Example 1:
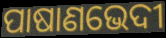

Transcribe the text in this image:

ପାଷାଣଭେଦୀ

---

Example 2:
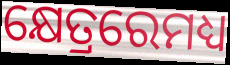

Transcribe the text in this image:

କ୍ଷେତ୍ରରେମଧ୍ୟ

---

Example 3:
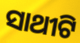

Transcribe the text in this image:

ସାଥୀଟି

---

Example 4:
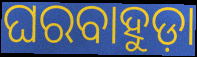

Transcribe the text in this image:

ଘରବାହୁଡ଼ା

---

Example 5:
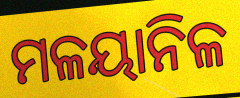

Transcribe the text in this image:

ମଳୟାନିଳ